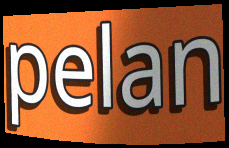
pelan